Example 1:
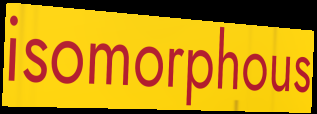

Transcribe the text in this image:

isomorphous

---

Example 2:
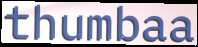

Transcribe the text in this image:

thumbaa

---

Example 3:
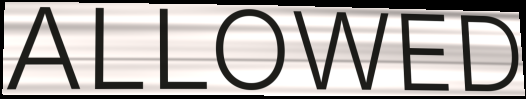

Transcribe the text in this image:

ALLOWED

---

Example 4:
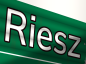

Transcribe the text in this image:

Riesz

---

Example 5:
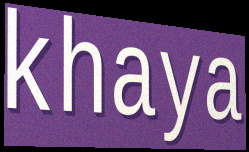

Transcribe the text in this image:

khaya